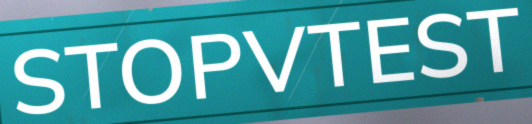
STOPVTEST